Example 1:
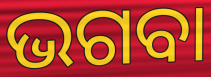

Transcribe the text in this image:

ଭଗବା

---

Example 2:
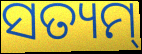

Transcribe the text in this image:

ସତ୍ୟମ୍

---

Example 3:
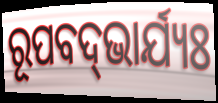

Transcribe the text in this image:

ରୂପବଦ୍‌ଭାର୍ଯ୍ୟଃ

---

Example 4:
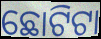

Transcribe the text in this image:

ଛୋଟିଟା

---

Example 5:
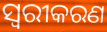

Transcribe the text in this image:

ସ୍ୱରୀକରଣ